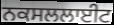
ਨਕਸਲਲਾਈਟ